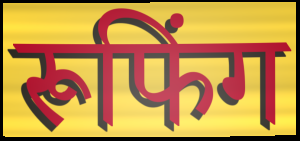
रूफिंग